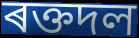
ৰক্তদল